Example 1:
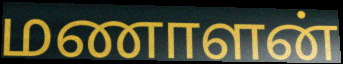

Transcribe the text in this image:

மணாளன்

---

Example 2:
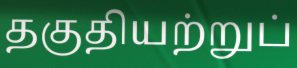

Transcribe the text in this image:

தகுதியற்றுப்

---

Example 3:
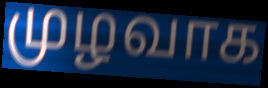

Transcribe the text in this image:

முழவாக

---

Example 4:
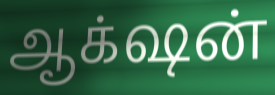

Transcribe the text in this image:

ஆக்‌ஷன்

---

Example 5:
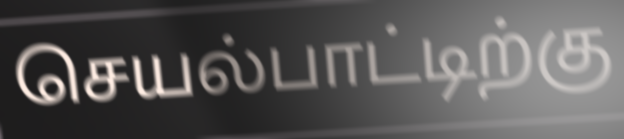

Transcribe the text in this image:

செயல்பாட்டிற்கு